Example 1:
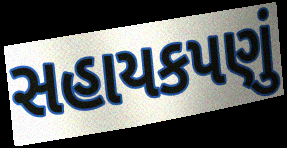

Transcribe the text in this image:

સહાયકપણું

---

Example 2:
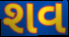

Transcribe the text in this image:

શવ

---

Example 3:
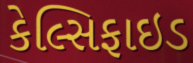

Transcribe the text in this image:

કેલ્સિફાઇડ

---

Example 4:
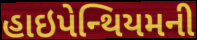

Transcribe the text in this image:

હાઇપેન્થિયમની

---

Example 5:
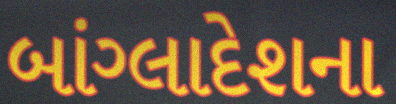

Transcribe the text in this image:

બાંગ્લાદેશના